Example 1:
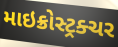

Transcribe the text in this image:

માઇક્રોસ્ટ્રક્ચર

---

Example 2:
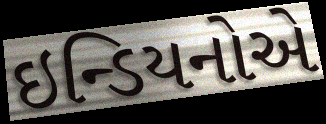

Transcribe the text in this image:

ઇન્ડિયનોએ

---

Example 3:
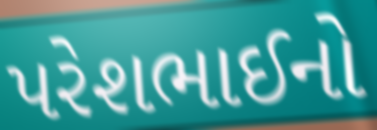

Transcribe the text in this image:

પરેશભાઈનો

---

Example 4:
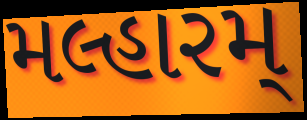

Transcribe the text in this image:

મલ્હારમ્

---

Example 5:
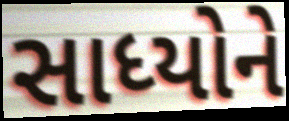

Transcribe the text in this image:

સાધ્યોને